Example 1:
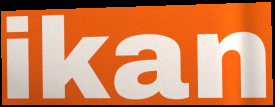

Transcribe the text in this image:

ikan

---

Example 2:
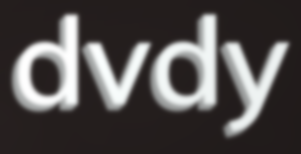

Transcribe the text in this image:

dvdy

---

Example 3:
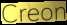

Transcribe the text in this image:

Creon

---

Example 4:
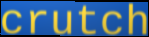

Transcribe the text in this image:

crutch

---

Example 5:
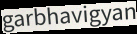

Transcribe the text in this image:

garbhavigyan